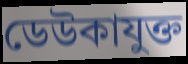
ডেউকাযুক্ত